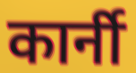
कार्नी